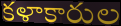
కళాకారుల